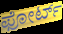
ಫೋರ್ಟ್